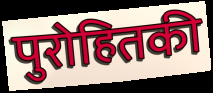
पुरोहितकी